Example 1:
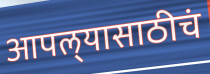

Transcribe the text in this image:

आपल्यासाठीचं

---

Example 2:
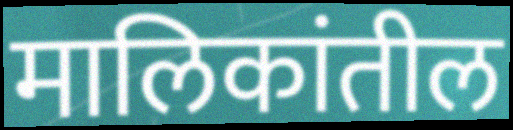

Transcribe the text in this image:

मालिकांतील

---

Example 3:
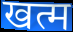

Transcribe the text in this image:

खत्म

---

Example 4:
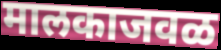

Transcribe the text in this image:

मालकाजवळ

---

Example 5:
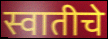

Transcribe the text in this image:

स्वातीचे